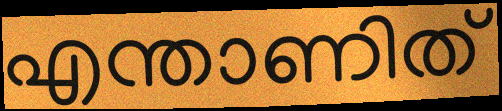
എന്താണിത്